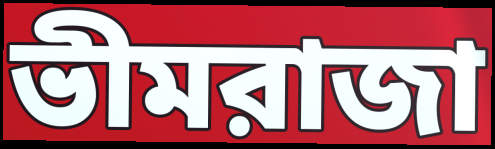
ভীমরাজা